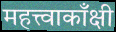
महत्त्वाकाँक्षी